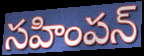
సహింపన్